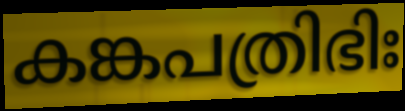
കങ്കപത്രിഭിഃ